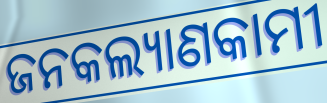
ଜନକଲ୍ୟାଣକାମୀ